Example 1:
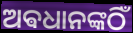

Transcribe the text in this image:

ଅଵଧାନଙ୍କଠିଁ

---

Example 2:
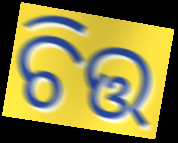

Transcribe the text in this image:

ଚିତ୍ତ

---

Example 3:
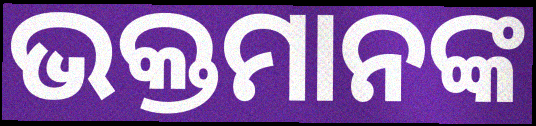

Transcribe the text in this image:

ଭକ୍ତମାନଙ୍କ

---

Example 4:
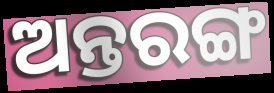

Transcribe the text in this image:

ଅନ୍ତରଙ୍ଗ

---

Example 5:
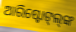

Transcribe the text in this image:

ଆରିଷ୍ଟୋଟ୍‌ଲ୍‌ଙ୍କ